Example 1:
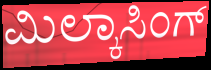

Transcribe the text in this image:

ಮಿಲ್ಕಾಸಿಂಗ್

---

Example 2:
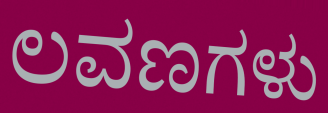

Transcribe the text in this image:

ಲವಣಗಳು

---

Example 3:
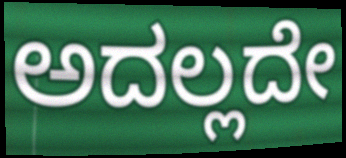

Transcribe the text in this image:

ಅದಲ್ಲದೇ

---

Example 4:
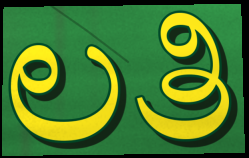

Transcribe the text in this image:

ಲತಿ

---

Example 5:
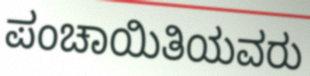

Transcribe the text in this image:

ಪಂಚಾಯಿತಿಯವರು